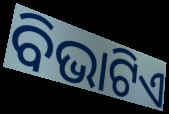
ବିଭାଟିଏ